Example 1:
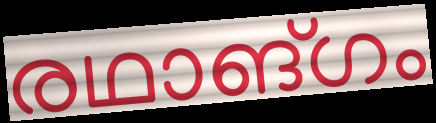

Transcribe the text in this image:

രഥാങ്ഗം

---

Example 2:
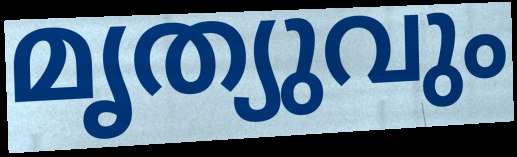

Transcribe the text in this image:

മൃത്യുവും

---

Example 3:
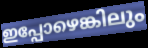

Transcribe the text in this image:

ഇപ്പോഴെങ്കിലും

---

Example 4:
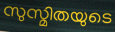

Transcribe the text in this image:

സുസ്മിതയുടെ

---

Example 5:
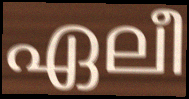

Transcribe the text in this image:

ഏലീ